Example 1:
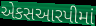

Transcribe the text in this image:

એકસઆરપીમાં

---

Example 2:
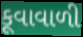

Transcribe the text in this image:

કૂવાવાળી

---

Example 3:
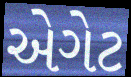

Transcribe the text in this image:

એગેટ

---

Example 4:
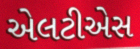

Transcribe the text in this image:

એલટીએસ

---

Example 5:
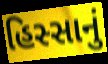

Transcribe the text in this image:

હિસ્સાનું